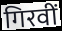
गिरवीं